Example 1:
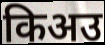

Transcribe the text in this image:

किअउ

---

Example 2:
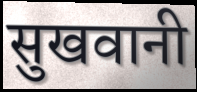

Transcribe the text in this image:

सुखवानी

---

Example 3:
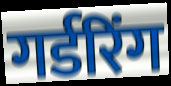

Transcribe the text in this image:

गर्डरिंग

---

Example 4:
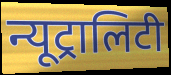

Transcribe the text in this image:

न्यूट्रालिटी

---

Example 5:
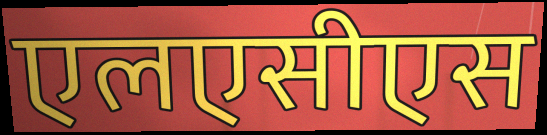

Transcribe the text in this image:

एलएसीएस